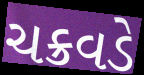
ચક્રવડે